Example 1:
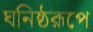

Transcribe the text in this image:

ঘনিষ্ঠরূপে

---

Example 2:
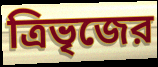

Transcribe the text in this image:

ত্রিভৃজের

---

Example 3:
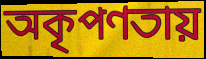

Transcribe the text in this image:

অকৃপণতায়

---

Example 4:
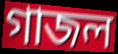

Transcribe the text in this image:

গাজল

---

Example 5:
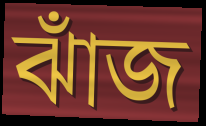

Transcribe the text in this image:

ঝাঁজ